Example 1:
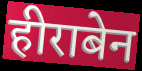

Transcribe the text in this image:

हीराबेन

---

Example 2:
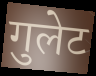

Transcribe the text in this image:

गुलेट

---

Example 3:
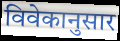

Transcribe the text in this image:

विवेकानुसार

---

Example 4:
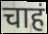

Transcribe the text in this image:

चाहं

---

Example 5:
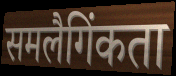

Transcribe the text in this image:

समलैगिंकता